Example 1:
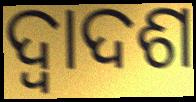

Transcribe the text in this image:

ଦ୍ଵାଦଶ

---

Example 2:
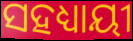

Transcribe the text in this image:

ସହଧ୍ୟାୟୀ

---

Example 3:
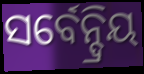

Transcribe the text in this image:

ସର୍ବେନ୍ଦ୍ରିୟ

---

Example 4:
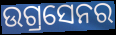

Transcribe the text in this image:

ଉଗ୍ରସେନର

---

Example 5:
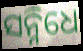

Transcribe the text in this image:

ସନ୍ନିଧେ